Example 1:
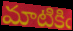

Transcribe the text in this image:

మాటికిఁ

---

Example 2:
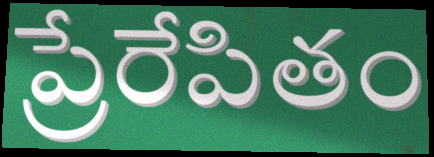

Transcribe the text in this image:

ప్రేరేపితం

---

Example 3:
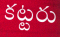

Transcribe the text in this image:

కట్టరు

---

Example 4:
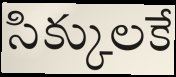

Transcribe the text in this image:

సిక్కులకే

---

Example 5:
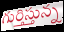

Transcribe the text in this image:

గుర్తిస్తున్న